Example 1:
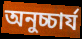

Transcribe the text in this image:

অনুচ্চার্য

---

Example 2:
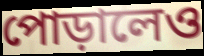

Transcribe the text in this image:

পোড়ালেও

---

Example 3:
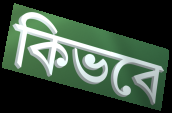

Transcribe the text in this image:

কিভবে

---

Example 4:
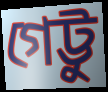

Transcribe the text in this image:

গেট্টু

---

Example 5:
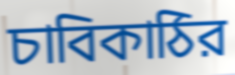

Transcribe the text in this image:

চাবিকাঠির